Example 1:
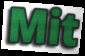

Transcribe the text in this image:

Mit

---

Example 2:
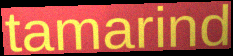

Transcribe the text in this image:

tamarind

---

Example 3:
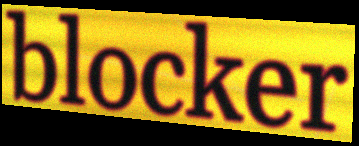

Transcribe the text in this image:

blocker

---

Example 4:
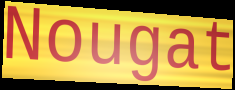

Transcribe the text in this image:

Nougat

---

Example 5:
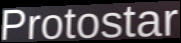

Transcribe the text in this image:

Protostar